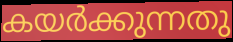
കയർക്കുന്നതു